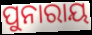
ପୁନାରାୟ